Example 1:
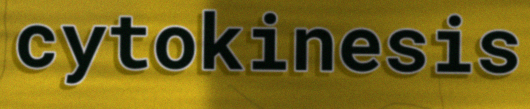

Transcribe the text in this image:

cytokinesis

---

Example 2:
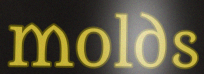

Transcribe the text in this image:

molds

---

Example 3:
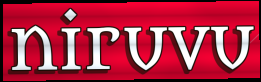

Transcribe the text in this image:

niruvu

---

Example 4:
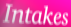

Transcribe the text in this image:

Intakes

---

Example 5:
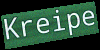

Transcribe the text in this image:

Kreipe